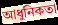
আধুনিকতা